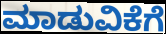
ಮಾಡುವಿಕೆಗೆ